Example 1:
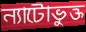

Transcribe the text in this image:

ন্যাটোভুক্ত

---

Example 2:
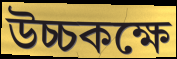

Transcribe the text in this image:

উচ্চকক্ষে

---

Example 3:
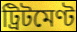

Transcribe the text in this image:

ট্রিটমেণ্ট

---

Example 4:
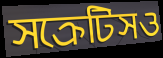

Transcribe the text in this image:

সক্রেটিসও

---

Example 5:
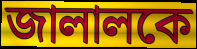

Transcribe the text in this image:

জালালকে